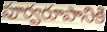
పూర్వరూపానికి